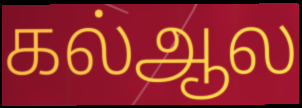
கல்ஆல